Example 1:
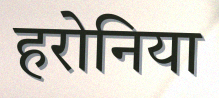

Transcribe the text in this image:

हरोनिया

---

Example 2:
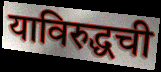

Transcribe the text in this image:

याविरुद्धची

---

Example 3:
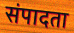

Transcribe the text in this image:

संपादता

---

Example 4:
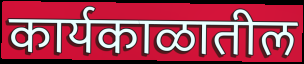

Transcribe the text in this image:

कार्यकाळातील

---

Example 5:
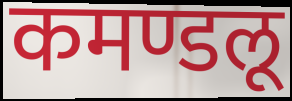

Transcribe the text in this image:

कमण्डलू